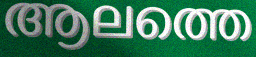
ആലത്തെ